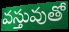
వస్తువుతో